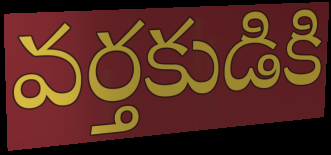
వర్తకుడికి